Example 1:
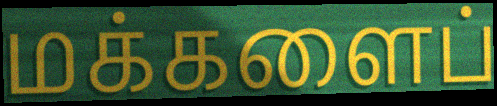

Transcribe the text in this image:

மக்களைப்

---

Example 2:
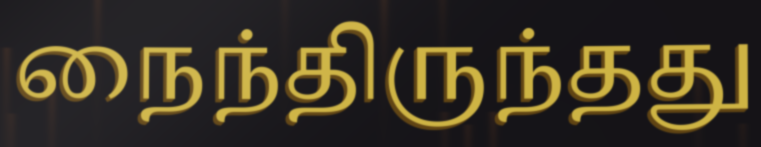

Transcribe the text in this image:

நைந்திருந்தது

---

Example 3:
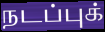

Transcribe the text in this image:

நடப்புக்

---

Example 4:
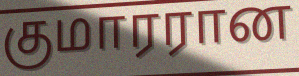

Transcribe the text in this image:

குமாரரான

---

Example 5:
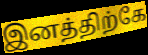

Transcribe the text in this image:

இனத்திற்கே